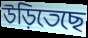
উড়িতেছে